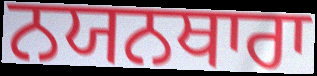
ਨਯਨਥਾਰਾ